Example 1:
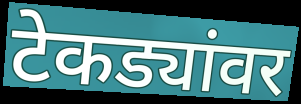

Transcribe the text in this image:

टेकड्यांवर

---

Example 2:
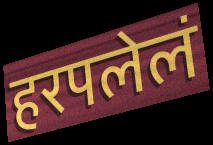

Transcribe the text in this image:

हरपलेलं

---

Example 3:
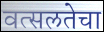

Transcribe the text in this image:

वत्सलतेचा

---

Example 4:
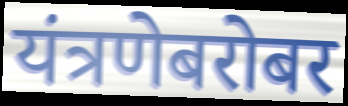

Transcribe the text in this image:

यंत्रणेबरोबर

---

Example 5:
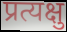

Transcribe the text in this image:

प्रत्यक्षु